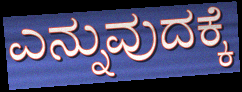
ಎನ್ನುವುದಕ್ಕೆ